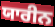
ਯਾਰੀਨ